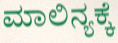
ಮಾಲಿನ್ಯಕ್ಕೆ